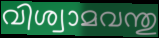
വിശ്വാമവന്തു